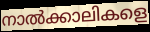
നാൽക്കാലികളെ